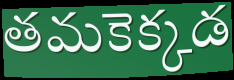
తమకెక్కడ